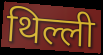
थिल्ली